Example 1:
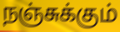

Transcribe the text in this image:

நஞ்சுக்கும்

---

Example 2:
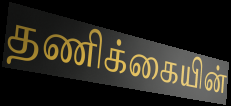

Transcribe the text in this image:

தணிக்கையின்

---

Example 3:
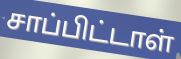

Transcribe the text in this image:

சாப்பிட்டாள்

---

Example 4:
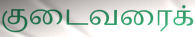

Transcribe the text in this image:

குடைவரைக்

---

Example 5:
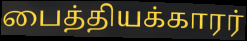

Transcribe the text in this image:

பைத்தியக்காரர்